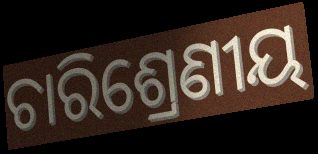
ଚାରିଶ୍ରେଣୀୟ